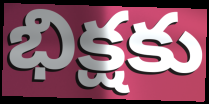
భిక్షకు